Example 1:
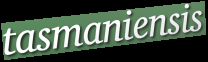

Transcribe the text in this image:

tasmaniensis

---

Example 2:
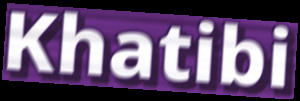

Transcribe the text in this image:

Khatibi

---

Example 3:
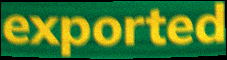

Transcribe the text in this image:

exported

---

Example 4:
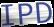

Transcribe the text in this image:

IPD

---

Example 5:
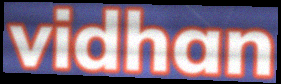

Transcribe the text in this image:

vidhan